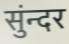
सुंन्दर